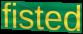
fisted